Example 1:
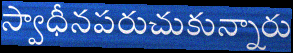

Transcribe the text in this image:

స్వాధీనపరుచుకున్నారు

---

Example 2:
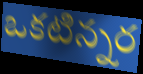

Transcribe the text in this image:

ఒకటిన్నర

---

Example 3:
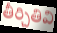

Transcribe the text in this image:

తీర్చితివి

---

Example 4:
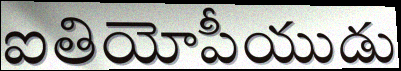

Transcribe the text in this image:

ఐతియోపీయుడు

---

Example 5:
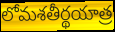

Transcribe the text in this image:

లోమశతీర్థయాత్ర